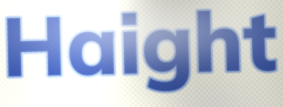
Haight